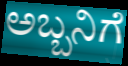
ಅಬ್ಬನಿಗೆ